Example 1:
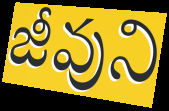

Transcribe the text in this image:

జీవుని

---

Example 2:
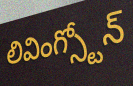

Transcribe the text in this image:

లివింగ్స్టోన్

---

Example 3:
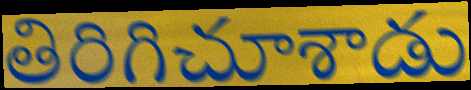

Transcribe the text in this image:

తిరిగిచూశాడు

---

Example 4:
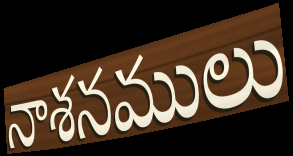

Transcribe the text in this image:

నాశనములు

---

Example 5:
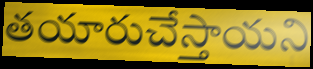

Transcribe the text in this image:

తయారుచేస్తాయని